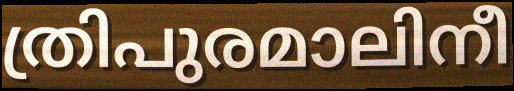
ത്രിപുരമാലിനീ